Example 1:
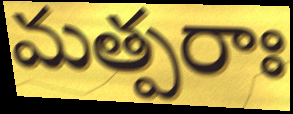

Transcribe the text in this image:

మత్పరాః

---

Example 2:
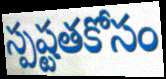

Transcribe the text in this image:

స్పష్టతకోసం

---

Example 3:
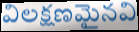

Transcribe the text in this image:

విలక్షణమైనవి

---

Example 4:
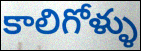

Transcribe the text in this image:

కాలిగోళ్ళు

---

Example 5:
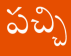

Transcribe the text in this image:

పచ్చి